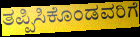
ತಪ್ಪಿಸಿಕೊಂಡವರಿಗೆ